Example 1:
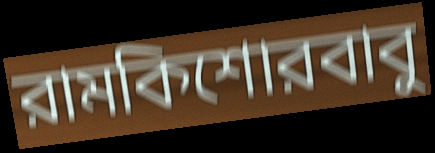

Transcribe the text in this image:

রামকিশোরবাবু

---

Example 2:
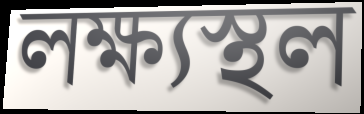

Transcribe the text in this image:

লক্ষ্যস্থল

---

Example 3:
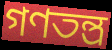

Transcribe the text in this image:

গণতন্ত্র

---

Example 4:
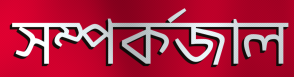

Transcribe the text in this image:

সম্পর্কজাল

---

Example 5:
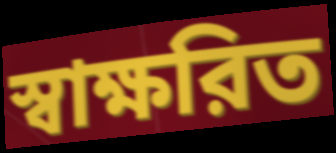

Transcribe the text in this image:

স্বাক্ষরিত